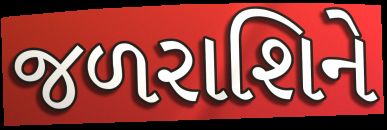
જળરાશિને